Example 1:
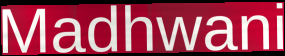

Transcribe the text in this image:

Madhwani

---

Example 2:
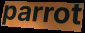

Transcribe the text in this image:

parrot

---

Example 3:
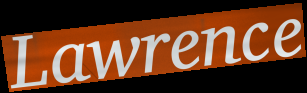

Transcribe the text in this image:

Lawrence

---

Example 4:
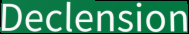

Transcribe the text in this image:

Declension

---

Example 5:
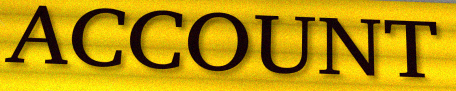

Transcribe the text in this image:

ACCOUNT